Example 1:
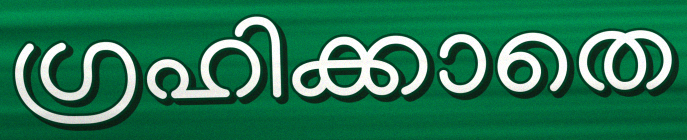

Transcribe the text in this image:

ഗ്രഹിക്കാതെ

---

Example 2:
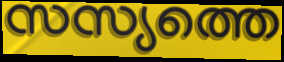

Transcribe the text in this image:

സസ്യത്തെ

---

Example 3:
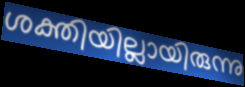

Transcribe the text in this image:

ശക്തിയില്ലായിരുന്നു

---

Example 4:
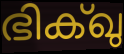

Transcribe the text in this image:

ഭിക്ഖു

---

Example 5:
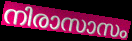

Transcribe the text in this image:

നിരാസാസം